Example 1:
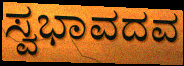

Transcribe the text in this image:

ಸ್ವಭಾವದವ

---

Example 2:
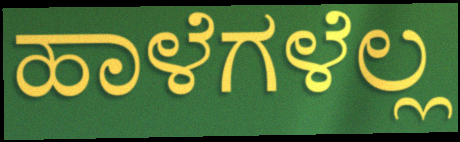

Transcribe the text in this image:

ಹಾಳೆಗಳೆಲ್ಲ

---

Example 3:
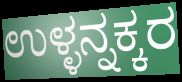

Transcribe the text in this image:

ಉಳ್ಳನ್ನಕ್ಕರ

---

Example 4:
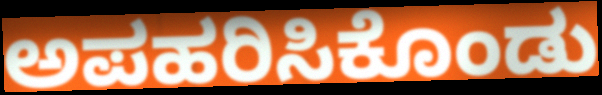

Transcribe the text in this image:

ಅಪಹರಿಸಿಕೊಂಡು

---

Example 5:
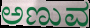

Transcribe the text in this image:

ಅಣುವ